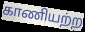
காணியற்ற